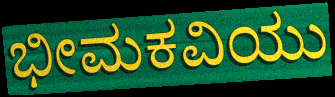
ಭೀಮಕವಿಯು